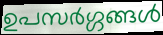
ഉപസർഗ്ഗങ്ങൾ